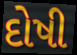
દોષી